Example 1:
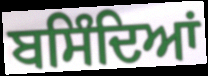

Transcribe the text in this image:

ਬਸਿੰਦਿਆਂ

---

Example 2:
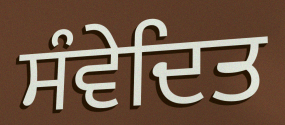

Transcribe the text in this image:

ਸੰਵੇਦਿਤ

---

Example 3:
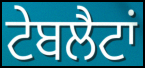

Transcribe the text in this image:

ਟੇਬਲੈਟਾਂ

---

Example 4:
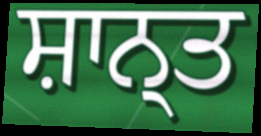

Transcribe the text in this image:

ਸ਼ਾਨ੍ਤ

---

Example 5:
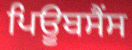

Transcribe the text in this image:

ਪਿਊਬਸੈਂਸ